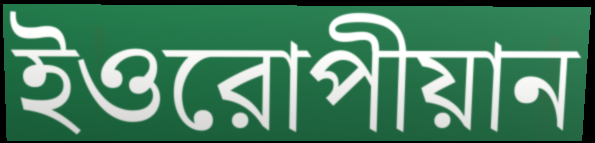
ইওরোপীয়ান